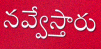
నవ్వేస్తారు